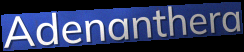
Adenanthera